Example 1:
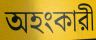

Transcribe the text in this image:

অহংকারী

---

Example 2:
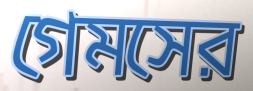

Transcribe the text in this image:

গেমসের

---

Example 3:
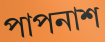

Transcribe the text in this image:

পাপনাশ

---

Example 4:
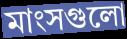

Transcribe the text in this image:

মাংসগুলো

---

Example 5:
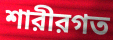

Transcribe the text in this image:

শারীরগত